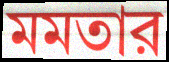
মমতার